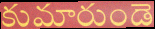
కుమారుండె